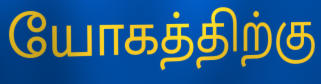
யோகத்திற்கு